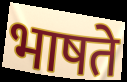
भाषते